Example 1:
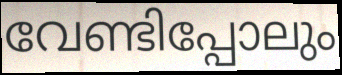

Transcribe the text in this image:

വേണ്ടിപ്പോലും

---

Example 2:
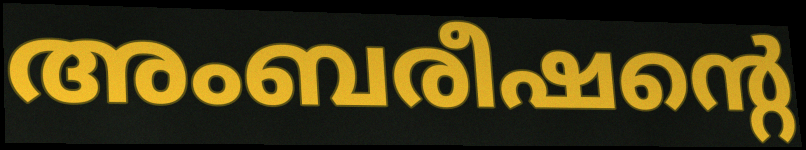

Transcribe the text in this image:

അംബരീഷന്റെ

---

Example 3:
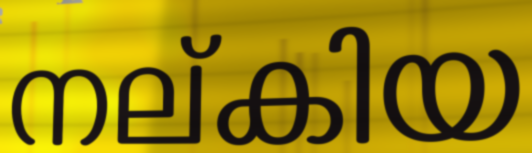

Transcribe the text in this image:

നല്‌കിയ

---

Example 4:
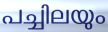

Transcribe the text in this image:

പച്ചിലയും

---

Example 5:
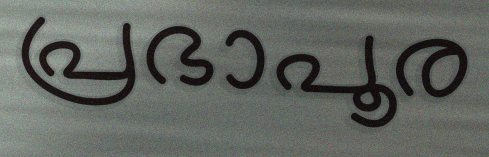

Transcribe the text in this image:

പ്രഭാപൂര